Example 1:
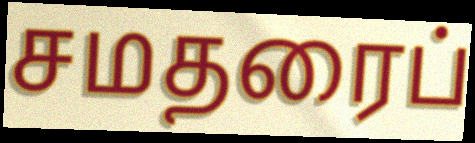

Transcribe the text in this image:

சமதரைப்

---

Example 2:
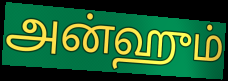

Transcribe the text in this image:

அன்ஹும்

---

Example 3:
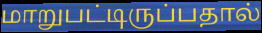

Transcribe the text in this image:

மாறுபட்டிருப்பதால்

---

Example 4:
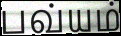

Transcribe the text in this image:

பவ்யம்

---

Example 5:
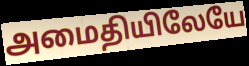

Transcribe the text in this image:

அமைதியிலேயே